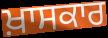
ਖ਼ਾਸਕਾਰ